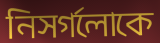
নিসর্গলোকে